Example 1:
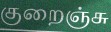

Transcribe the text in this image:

குறைஞ்சு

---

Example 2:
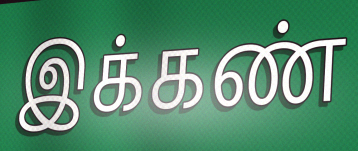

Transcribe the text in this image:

இக்கண்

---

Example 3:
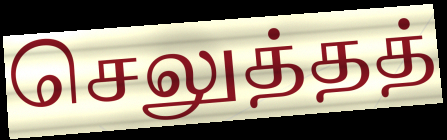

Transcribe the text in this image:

செலுத்தத்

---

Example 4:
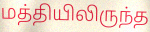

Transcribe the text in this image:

மத்தியிலிருந்த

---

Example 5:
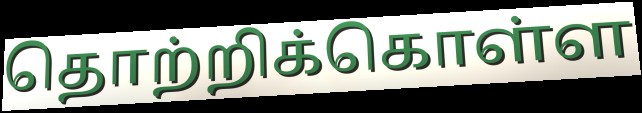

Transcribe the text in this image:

தொற்றிக்கொள்ள